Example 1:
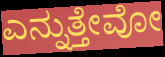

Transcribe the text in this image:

ಎನ್ನುತ್ತೇವೋ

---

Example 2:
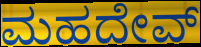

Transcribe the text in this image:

ಮಹದೇವ್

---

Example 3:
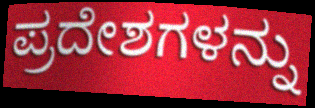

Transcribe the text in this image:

ಪ್ರದೇಶಗಳನ್ನು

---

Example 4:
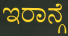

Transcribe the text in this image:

ಇರಾನ್ಗೆ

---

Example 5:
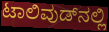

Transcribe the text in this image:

ಟಾಲಿವುಡ್‌ನಲ್ಲಿ